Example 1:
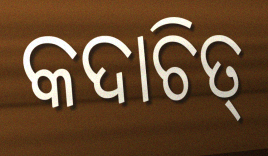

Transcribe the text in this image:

କଦାଚିତ୍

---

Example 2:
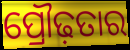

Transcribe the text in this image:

ପ୍ରୌଢ଼ତାର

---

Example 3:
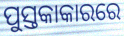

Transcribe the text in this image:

ପୁସ୍ତକାକାରରେ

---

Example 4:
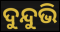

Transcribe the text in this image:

ଦୁନ୍ଦୁଭି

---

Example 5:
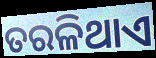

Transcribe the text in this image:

ତରଳିଥାଏ